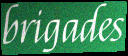
brigades